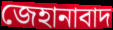
জেহানাবাদ